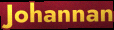
Johannan